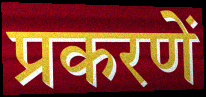
प्रकरणें